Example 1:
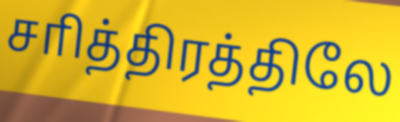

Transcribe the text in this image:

சரித்திரத்திலே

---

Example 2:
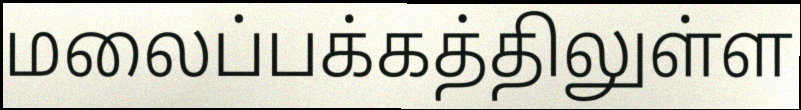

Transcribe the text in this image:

மலைப்பக்கத்திலுள்ள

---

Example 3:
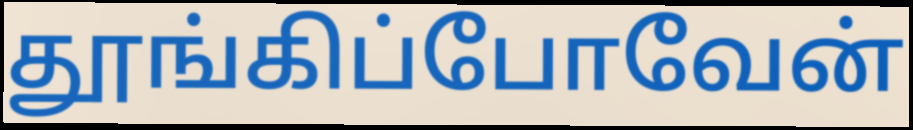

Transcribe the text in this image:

தூங்கிப்போவேன்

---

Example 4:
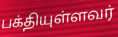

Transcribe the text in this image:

பக்தியுள்ளவர்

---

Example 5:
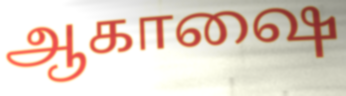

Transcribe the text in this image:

ஆகாஷை